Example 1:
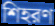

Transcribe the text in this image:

শিহরণ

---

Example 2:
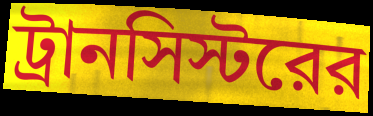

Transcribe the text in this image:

ট্রানসিস্টরের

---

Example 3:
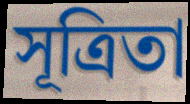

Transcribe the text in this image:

সূত্রিতা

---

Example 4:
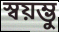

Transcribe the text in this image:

স্বয়ম্ভু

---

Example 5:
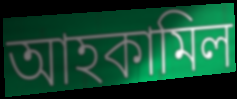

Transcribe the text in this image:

আহকামিল